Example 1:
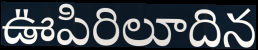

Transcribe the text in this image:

ఊపిరిలూదిన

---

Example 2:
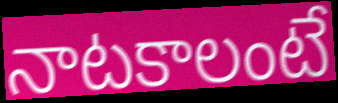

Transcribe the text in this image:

నాటకాలంటే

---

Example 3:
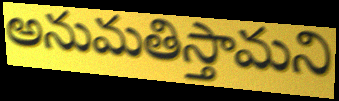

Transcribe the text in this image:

అనుమతిస్తామని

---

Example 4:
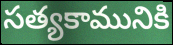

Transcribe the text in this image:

సత్యకామునికి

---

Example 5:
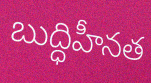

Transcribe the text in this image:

బుద్ధిహీనత